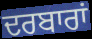
ਦਰਬਾਰਾਂ